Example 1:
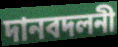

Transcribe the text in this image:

দানবদলনী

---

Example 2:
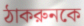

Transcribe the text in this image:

ঠাকরুনকে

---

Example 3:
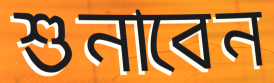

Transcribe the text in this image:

শুনাবেন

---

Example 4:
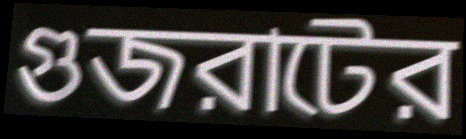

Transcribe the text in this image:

গুজরাটের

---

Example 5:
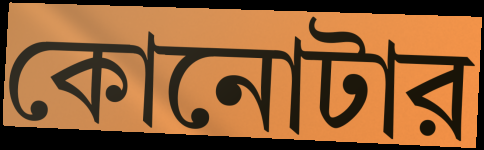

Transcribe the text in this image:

কোনোটার